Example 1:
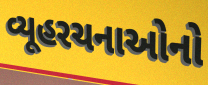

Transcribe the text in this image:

વ્યૂહરચનાઓનો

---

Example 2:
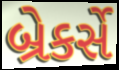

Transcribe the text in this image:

બ્રેકર્સે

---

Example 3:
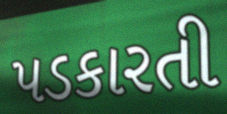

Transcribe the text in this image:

પડકારતી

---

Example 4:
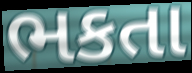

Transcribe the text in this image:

ભકતા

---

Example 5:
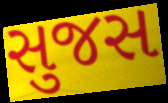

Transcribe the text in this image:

સુજસ